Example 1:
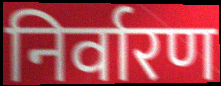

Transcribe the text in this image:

निर्वारण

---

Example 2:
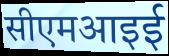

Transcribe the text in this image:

सीएमआइई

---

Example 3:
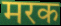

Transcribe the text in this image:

मरक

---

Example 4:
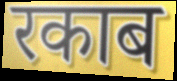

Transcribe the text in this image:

रकाब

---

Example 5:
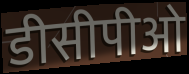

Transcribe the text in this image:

डीसीपीओ